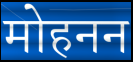
मोहनन